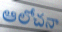
ఆలోచనా